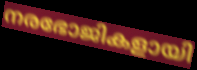
നരഭോജികളായി